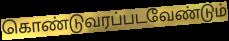
கொண்டுவரப்படவேண்டும்